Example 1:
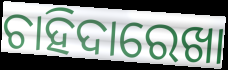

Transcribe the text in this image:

ଚାହିଦାରେଖା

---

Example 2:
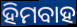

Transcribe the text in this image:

ହିମବାହ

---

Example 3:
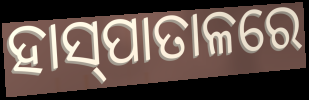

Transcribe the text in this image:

ହାସ୍‌ପାତାଳରେ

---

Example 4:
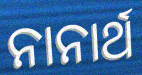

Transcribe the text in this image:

ନାନାର୍ଥ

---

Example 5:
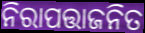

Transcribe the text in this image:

ନିରାପତ୍ତାଜନିତ